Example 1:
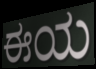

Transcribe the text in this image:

ಈಯ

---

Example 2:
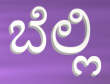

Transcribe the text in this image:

ಬೆಲ್ಲಿ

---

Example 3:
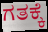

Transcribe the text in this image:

ಗತಕ್ಕೆ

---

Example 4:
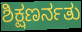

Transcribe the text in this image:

ಶಿಕ್ಷಣರ್ನತು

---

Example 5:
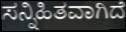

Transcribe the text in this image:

ಸನ್ನಿಹಿತವಾಗಿದೆ